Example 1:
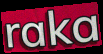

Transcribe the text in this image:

raka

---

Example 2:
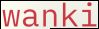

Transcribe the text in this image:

wanki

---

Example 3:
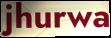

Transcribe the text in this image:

jhurwa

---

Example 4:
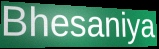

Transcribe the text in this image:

Bhesaniya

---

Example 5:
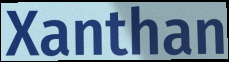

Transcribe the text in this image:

Xanthan